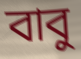
বাবু